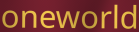
oneworld